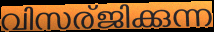
വിസര്ജിക്കുന്ന